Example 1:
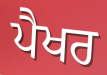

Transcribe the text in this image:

ਪੈਖਰ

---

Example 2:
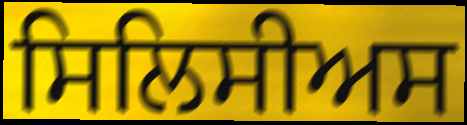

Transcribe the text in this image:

ਸਿਲਿਸੀਅਸ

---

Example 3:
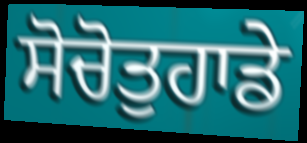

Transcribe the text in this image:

ਸੋਚੋਤੁਹਾਡੇ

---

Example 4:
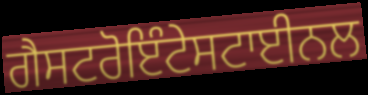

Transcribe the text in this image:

ਗੈਸਟਰੋਇੰਟੇਸਟਾਈਨਲ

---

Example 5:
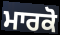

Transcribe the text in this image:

ਮਾਰਕੋ